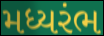
મધ્યરંભ